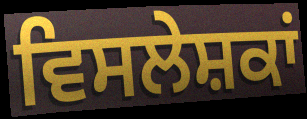
ਵਿਸਲੇਸ਼ਕਾਂ